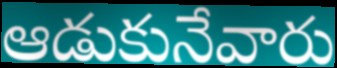
ఆడుకునేవారు